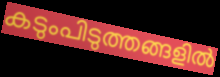
കടുംപിടുത്തങ്ങളിൽ